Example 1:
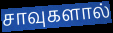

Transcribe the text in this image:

சாவுகளால்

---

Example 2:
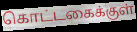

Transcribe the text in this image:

கொட்டகைக்குள்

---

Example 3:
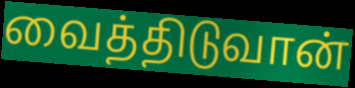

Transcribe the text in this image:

வைத்திடுவான்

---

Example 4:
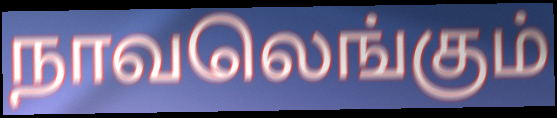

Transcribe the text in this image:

நாவலெங்கும்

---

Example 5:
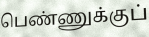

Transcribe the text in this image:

பெண்ணுக்குப்